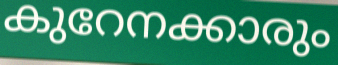
കുറേനക്കാരും